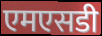
एमएसडी